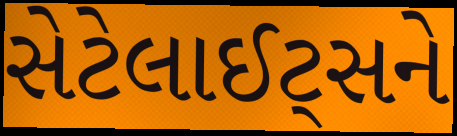
સેટેલાઈટ્સને